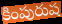
కింపురుష